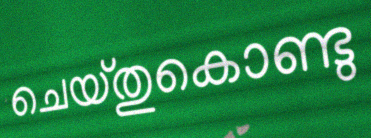
ചെയ്തുകൊണ്ടു